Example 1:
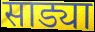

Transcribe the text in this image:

साड्या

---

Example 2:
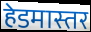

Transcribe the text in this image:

हेडमास्तर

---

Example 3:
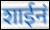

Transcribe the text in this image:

शाईनं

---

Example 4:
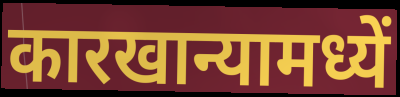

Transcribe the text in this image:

कारखान्यामध्यें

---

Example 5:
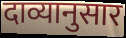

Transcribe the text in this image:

दाव्यानुसार